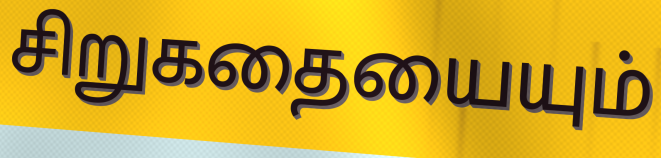
சிறுகதையையும்